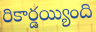
రికార్డయ్యింది